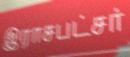
இராசபட்சர்